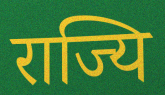
राज्यि